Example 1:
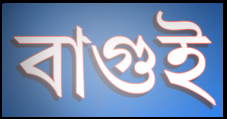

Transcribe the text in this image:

বাগুই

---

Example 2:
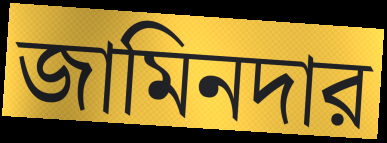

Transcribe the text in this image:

জামিনদার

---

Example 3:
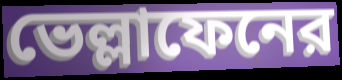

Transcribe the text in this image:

ভেল্লাফেনের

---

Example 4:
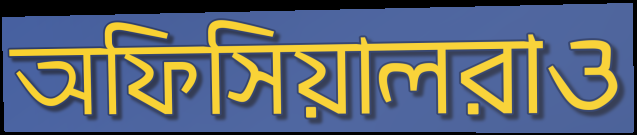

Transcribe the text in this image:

অফিসিয়ালরাও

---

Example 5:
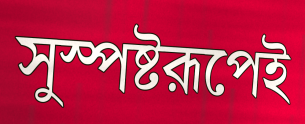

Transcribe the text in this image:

সুস্পষ্টরূপেই